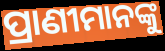
ପ୍ରାଣୀମାନଙ୍କୁ